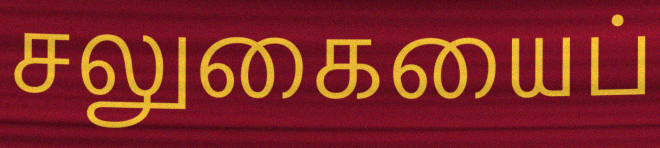
சலுகையைப்